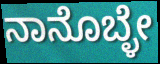
ನಾನೊಬ್ಳೇ